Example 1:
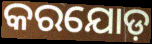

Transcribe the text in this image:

କରଯୋଡ଼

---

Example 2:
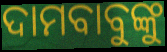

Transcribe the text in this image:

ଦାମବାବୁଙ୍କୁ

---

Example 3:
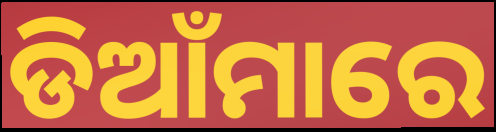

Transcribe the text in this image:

ଡିଆଁମାରେ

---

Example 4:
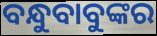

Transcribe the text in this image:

ବନ୍ଧୁବାବୁଙ୍କର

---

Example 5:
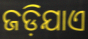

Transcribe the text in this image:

ଜଡ଼ିଯାଏ